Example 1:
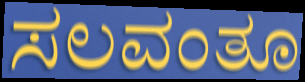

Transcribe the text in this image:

ಸಲವಂತೂ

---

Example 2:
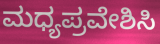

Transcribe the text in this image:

ಮಧ್ಯಪ್ರವೇಶಿಸಿ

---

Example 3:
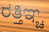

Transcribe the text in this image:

ರತ್ತಿಞ್ಚ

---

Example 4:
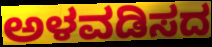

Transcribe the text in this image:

ಅಳವಡಿಸದ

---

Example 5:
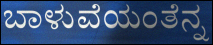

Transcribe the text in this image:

ಬಾಳುವೆಯಂತೆನ್ನ